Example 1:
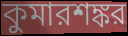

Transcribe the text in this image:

কুমারশঙ্কর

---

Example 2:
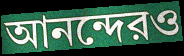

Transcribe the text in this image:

আনন্দেরও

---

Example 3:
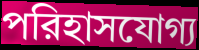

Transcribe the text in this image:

পরিহাসযোগ্য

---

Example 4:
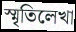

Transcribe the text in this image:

স্মৃতিলেখা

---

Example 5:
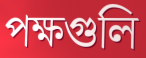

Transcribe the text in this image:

পক্ষগুলি